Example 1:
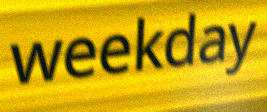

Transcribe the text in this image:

weekday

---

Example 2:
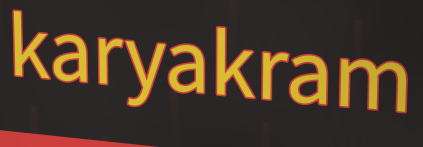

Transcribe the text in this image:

karyakram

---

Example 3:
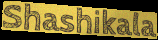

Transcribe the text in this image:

Shashikala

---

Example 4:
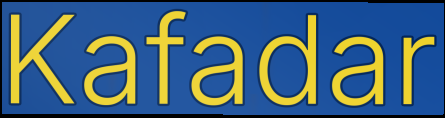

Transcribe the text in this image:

Kafadar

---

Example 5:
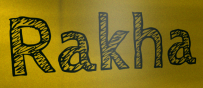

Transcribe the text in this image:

Rakha